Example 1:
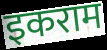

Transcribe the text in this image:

इकराम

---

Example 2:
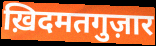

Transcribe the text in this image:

ख़िदमतगुज़ार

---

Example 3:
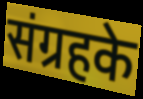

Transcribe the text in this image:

संग्रहके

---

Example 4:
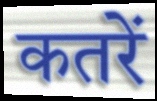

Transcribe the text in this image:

कतरें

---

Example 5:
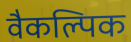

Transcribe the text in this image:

वैकल्पिक